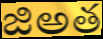
జిఅత